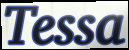
Tessa